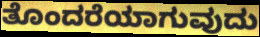
ತೊಂದರೆಯಾಗುವುದು